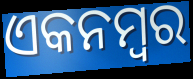
ଏକନମ୍ବର